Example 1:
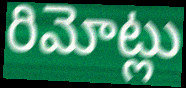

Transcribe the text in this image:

రిమోట్లు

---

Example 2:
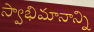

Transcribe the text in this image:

స్వాభిమానాన్ని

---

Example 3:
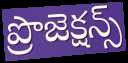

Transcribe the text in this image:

ప్రొజెక్షన్స్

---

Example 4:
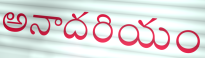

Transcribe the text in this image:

అనాదరియం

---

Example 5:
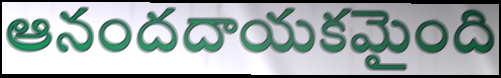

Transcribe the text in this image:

ఆనందదాయకమైంది